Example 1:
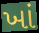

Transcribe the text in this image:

ખાં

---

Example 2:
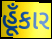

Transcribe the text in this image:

હૂઁકાર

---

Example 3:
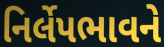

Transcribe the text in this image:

નિર્લેપભાવને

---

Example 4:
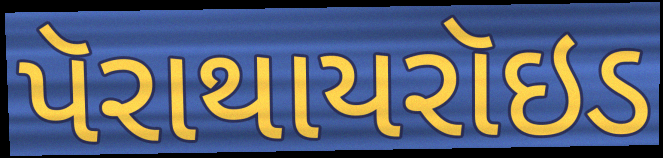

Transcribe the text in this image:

પૅરાથાયરૉઇડ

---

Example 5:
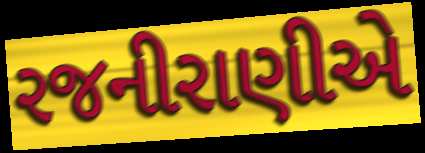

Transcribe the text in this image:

રજનીરાણીએ